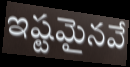
ఇష్టమైనవే